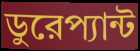
ডুরেপ্যান্ট